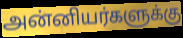
அன்னியர்களுக்கு